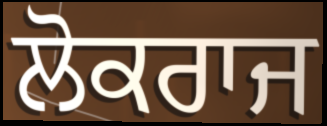
ਲੋਕਰਾਜ